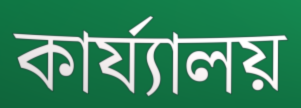
কাৰ্য্যালয়